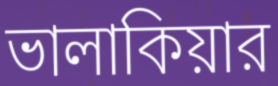
ভালাকিয়ার